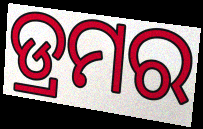
ଡ୍ରମର